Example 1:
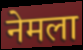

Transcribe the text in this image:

नेमला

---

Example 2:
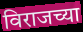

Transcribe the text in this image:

विराजच्या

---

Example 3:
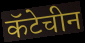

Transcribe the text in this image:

कॅटेचीन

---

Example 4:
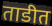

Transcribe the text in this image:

ताडीत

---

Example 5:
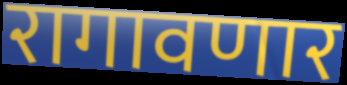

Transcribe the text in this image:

रागावणार